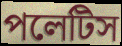
পলেটিস